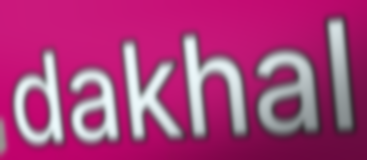
dakhal